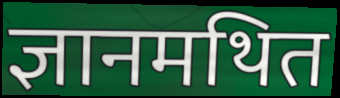
ज्ञानमथित